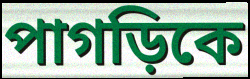
পাগড়িকে